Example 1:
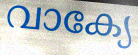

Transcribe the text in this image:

വാക്യേ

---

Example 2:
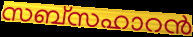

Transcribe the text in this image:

സബ്സഹാറൻ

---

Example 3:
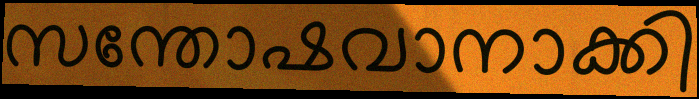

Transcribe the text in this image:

സന്തോഷവാനാക്കി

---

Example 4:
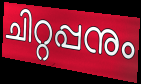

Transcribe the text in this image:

ചിറ്റപ്പനും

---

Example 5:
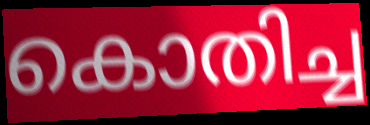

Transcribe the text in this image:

കൊതിച്ച